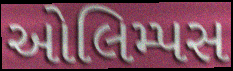
ઓલિમ્પસ